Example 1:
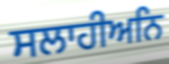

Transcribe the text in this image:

ਸਲਾਹੀਅਨਿ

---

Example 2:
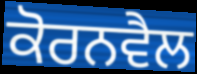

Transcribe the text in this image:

ਕੋਰਨਵੈਲ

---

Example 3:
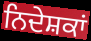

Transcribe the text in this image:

ਨਿਦੇਸ਼ਕਾਂ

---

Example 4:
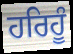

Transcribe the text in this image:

ਹਰਿਹੂੰ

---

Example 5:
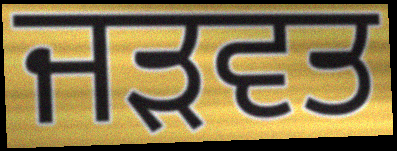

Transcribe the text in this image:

ਜੜਵਤ